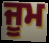
ਜੂਮ